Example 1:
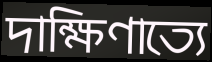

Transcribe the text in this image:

দাক্ষিণাত্যে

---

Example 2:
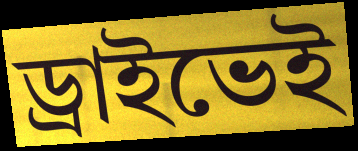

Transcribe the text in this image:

ড্রাইভেই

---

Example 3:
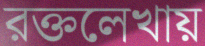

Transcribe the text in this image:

রক্তলেখায়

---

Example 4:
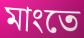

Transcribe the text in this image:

মাংতে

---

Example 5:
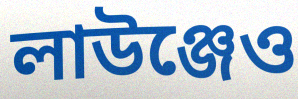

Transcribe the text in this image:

লাউঞ্জেও